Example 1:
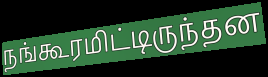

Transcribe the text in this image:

நங்கூரமிட்டிருந்தன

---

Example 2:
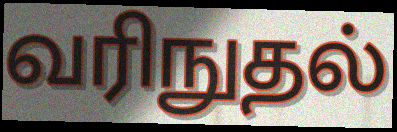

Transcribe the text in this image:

வரிநுதல்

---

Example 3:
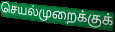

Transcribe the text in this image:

செயல்முறைக்குக்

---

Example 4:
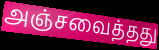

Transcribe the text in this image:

அஞ்சவைத்தது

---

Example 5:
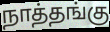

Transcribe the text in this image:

நாத்தங்கு